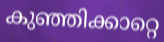
കുഞ്ഞിക്കാറ്റെ